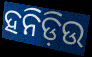
ହନିଡ଼ିଉ